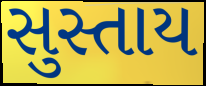
સુસ્તાય